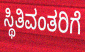
ಸ್ಥಿತಿವಂತರಿಗೆ